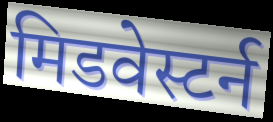
मिडवेस्टर्न